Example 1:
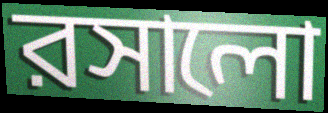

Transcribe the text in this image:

রসালো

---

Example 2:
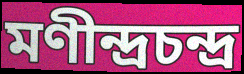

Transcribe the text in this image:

মণীন্দ্রচন্দ্র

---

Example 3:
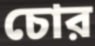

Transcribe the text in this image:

চোর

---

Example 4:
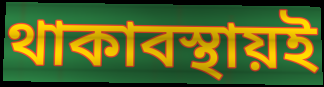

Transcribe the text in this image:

থাকাবস্থায়ই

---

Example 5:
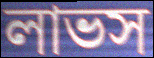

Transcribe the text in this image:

লাভস